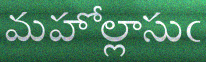
మహోల్లాసుఁ